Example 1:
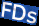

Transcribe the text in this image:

FDs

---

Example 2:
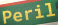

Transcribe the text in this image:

Peril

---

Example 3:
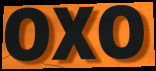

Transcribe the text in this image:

OXO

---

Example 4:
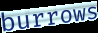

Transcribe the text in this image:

burrows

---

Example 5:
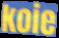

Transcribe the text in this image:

koie